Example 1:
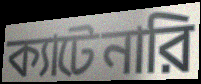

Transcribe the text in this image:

ক্যাটেনারি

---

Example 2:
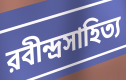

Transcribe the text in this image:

রবীন্দ্রসাহিত্য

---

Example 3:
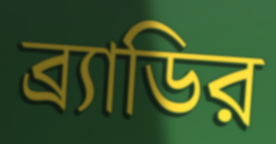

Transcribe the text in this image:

ব্র্যাডির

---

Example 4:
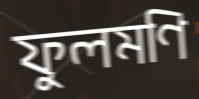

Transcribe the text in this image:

ফুলমণি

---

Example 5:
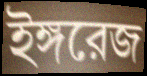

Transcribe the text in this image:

ইঙ্গরেজ